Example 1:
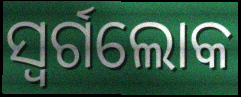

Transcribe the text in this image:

ସ୍ୱର୍ଗଲୋକ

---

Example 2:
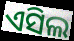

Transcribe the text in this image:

ଏସିଲ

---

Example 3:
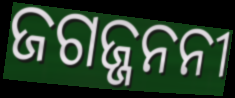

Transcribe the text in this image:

ଜଗଜ୍ଜନନୀ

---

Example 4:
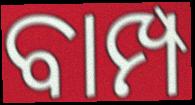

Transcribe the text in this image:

ବାମ୍ପ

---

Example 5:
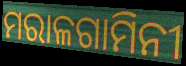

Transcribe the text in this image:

ମରାଳଗାମିନୀ